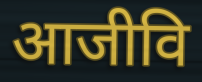
आजीवि